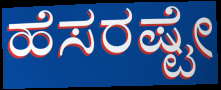
ಹೆಸರಷ್ಟೇ